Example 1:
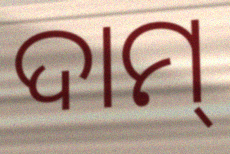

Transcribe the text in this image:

ଦାମ୍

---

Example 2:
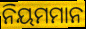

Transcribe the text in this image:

ନିୟମମାନ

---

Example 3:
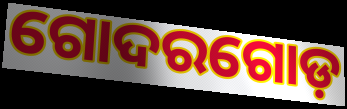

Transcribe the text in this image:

ଗୋଦରଗୋଡ଼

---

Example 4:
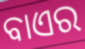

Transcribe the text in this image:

ବାଏର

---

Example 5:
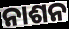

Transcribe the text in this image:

ନାଶନ